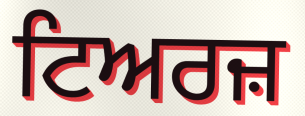
ਟਿਅਰਜ਼